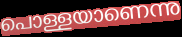
പൊള്ളയാണെന്നു